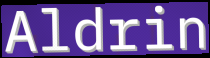
Aldrin